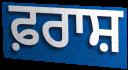
ਫ਼ਰਾਸ਼